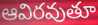
ఆవిరవుతూ